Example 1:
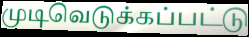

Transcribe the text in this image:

முடிவெடுக்கப்பட்டு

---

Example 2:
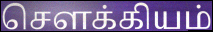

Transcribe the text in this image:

சௌக்கியம்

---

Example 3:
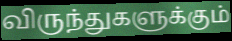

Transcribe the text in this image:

விருந்துகளுக்கும்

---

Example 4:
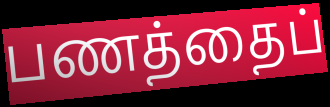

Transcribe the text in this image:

பணத்தைப்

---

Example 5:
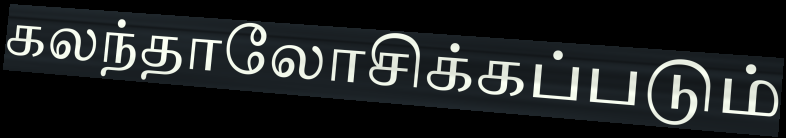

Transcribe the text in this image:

கலந்தாலோசிக்கப்படும்